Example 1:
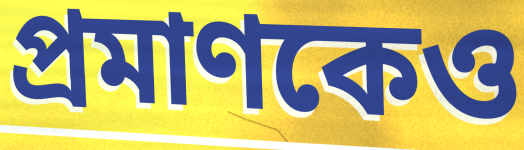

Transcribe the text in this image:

প্রমাণকেও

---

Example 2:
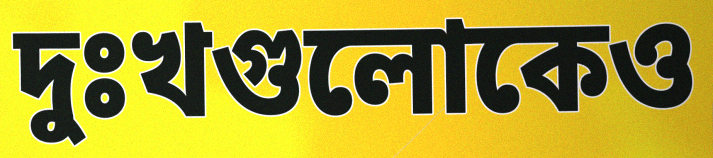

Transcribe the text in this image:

দুঃখগুলোকেও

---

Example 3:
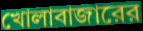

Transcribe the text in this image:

খোলাবাজারের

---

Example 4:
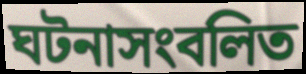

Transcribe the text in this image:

ঘটনাসংবলিত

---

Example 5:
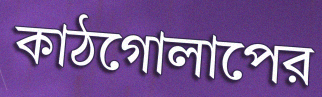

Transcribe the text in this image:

কাঠগোলাপের